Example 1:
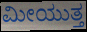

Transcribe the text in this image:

ಮೀಯುತ್ತ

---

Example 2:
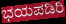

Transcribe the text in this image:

ಭಯಪಡಿರಿ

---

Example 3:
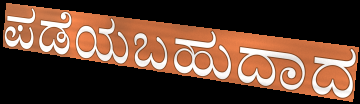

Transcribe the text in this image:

ಪಡೆಯಬಹುದಾದ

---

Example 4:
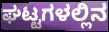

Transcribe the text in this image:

ಘಟ್ಟಗಳಲ್ಲಿನ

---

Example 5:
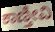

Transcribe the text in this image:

ಕಾಣ್ತೀವಿ